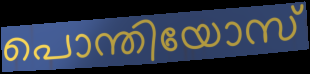
പൊന്തിയോസ്